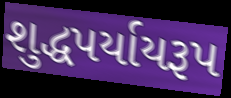
શુદ્ધપર્યાયરૂપ